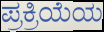
ಪ್ರಕ್ರಿಯೆಯ